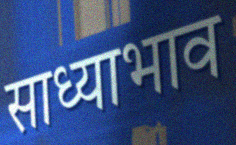
साध्याभाव